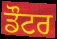
ਡੌਟਰ